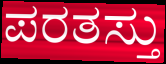
ಪರತಸ್ತು